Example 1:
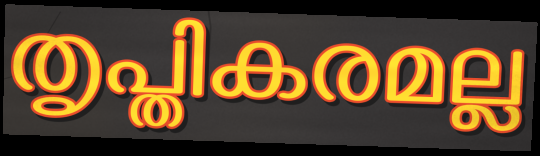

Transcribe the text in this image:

തൃപ്തികരമല്ല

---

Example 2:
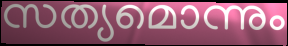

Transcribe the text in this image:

സത്യമൊന്നും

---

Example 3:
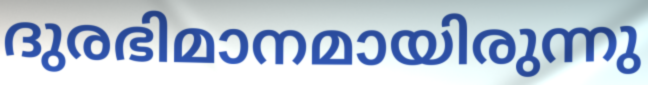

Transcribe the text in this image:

ദുരഭിമാനമായിരുന്നു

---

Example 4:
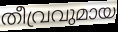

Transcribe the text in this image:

തീവ്രവുമായ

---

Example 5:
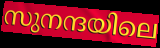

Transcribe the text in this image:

സുനന്ദയിലെ